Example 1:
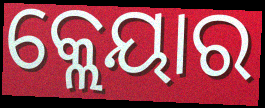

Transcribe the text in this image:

କ୍ଲେୟାର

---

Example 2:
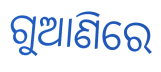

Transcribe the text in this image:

ଗୁଆଣିରେ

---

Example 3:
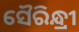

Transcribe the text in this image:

ସୈରିନ୍ଧ୍ରୀ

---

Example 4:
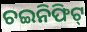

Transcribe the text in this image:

ଚଇନିଫିଟ୍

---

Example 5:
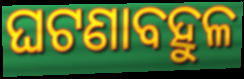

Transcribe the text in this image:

ଘଟଣାବହୁଳ